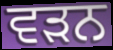
ਵੜਨ